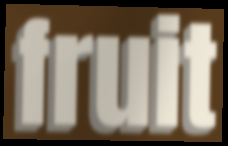
fruit